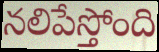
నలిపేస్తోంది